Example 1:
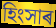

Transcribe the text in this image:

হিংসাৰ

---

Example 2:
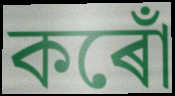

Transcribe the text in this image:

কৰোঁ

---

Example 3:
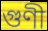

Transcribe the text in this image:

গুণী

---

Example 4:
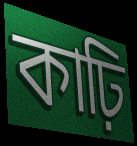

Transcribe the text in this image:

কাঢ়ি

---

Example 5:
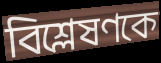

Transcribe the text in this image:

বিশ্লেষণকে